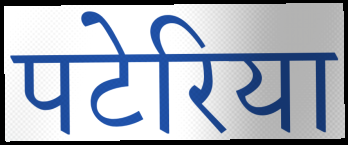
पटेरिया